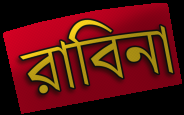
রাবিনা